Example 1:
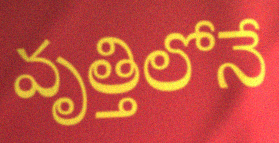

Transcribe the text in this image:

వృత్తిలోనే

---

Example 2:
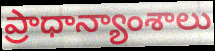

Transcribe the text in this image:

ప్రాధాన్యాంశాలు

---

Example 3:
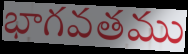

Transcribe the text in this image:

భాగవతము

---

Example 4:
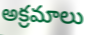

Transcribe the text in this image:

అక్రమాలు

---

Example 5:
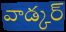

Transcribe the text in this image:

వాడ్కర్